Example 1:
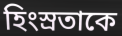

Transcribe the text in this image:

হিংস্রতাকে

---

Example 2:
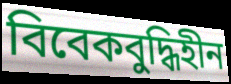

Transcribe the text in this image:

বিবেকবুদ্ধিহীন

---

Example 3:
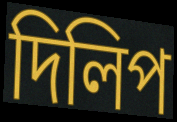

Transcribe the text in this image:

দিলিপ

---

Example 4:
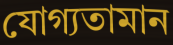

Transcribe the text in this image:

যোগ্যতামান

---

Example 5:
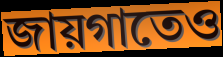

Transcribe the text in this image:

জায়গাতেও